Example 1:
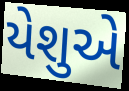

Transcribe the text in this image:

યેશુએ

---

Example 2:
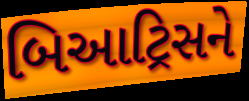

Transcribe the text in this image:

બિઆટ્રિસને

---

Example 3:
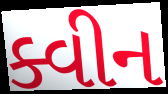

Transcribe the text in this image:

ક્વીન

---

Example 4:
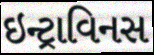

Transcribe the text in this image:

ઇન્ટ્રાવિનસ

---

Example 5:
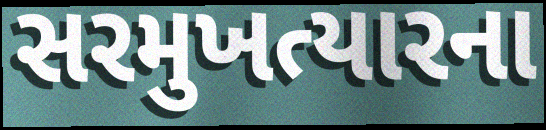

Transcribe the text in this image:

સરમુખત્યારના